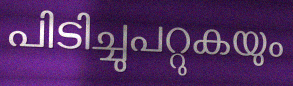
പിടിച്ചുപറ്റുകയും